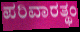
ಪರಿವಾರತ್ಥಂ